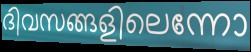
ദിവസങ്ങളിലെന്നോ